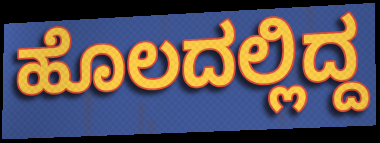
ಹೊಲದಲ್ಲಿದ್ದ